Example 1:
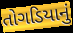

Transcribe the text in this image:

તોગડિયાનું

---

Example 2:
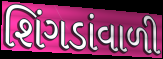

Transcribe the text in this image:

શિંગડાંવાળી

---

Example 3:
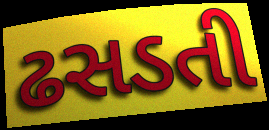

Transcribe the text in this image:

ઢસડતી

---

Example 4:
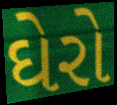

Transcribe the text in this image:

ઘેરો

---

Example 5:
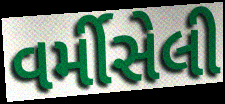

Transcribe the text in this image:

વર્મીસેલી